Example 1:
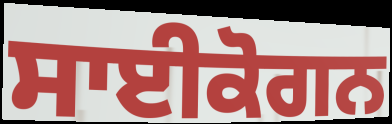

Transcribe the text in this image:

ਸਾਈਕੋਗਨ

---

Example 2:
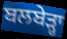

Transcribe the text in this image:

ਬਲਬੇੜ੍ਹਾ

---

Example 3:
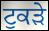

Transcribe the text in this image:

ਟੁਕੜੇ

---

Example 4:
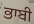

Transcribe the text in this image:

ਭਾਬੀ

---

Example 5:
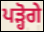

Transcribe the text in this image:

ਪੜ੍ਹੋਗੇ